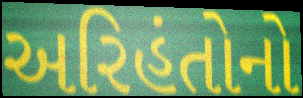
અરિહંતોનો